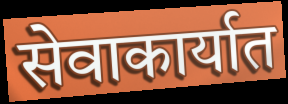
सेवाकार्यात